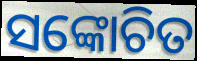
ସଙ୍କୋଚିତ